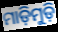
ମାଡ଼ିମୁଡ଼ି